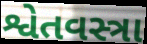
શ્વેતવસ્ત્રા